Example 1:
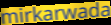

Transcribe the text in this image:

mirkarwada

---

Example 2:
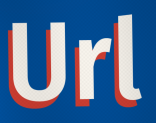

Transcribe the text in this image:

Url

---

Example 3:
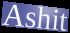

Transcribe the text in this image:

Ashit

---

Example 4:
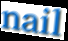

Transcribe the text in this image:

nail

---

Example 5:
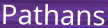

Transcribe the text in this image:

Pathans